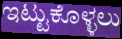
ಇಟ್ಟುಕೊಳ್ಳಲು